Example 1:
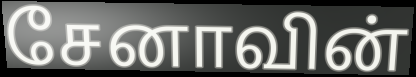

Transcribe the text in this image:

சேனாவின்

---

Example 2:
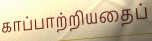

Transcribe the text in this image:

காப்பாற்றியதைப்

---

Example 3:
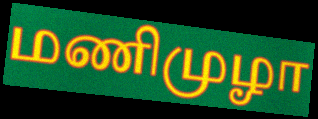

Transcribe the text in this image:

மணிமுழா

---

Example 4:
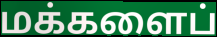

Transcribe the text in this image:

மக்களைப்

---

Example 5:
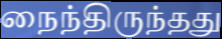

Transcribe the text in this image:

நைந்திருந்தது